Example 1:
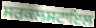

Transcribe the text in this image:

ਸਰਕਲਸਟਾਇਲ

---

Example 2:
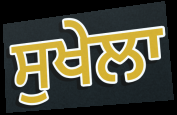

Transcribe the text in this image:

ਸੁਖੇਲਾ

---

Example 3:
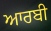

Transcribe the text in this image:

ਆਰਬੀ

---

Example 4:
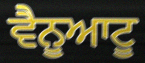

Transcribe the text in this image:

ਵੈਨੂਆਟੂ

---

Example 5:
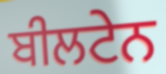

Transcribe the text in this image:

ਬੀਲਟੇਨ